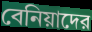
বেনিয়াদের